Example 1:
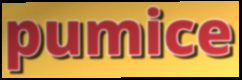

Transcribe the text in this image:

pumice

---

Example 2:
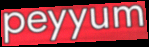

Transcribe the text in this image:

peyyum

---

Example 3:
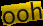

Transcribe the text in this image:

ooh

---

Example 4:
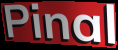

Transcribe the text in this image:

Pinal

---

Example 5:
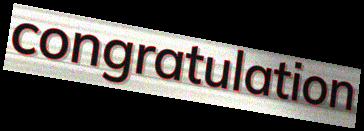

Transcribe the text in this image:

congratulation